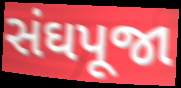
સંઘપૂજા